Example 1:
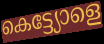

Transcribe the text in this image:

കെട്ട്യോളെ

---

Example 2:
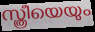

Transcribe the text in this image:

സ്ത്രീയെയും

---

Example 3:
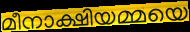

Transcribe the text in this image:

മീനാക്ഷിയമ്മയെ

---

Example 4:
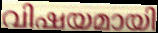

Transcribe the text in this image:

വിഷയമായി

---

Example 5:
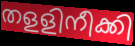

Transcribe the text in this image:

തളളിനീക്കി